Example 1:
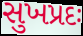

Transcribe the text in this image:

સુખપ્રદઃ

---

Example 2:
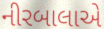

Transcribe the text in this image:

નીરબાલાએ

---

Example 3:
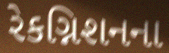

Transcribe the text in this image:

રેકગ્નિશનના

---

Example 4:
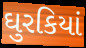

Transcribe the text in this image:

ઘુરકિયાં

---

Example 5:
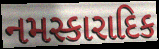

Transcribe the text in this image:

નમસ્કારાદિક